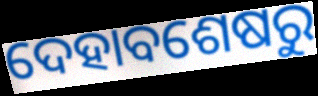
ଦେହାବଶେଷରୁ